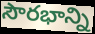
సౌరభాన్ని